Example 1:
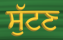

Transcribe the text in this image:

ਸੁੱਟਣ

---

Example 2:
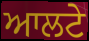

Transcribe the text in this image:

ਆਲਟੇ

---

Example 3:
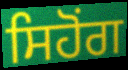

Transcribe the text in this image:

ਸਿਹੋਂਗ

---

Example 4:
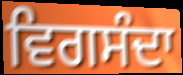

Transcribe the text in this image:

ਵਿਗਸੰਦਾ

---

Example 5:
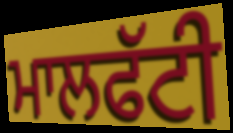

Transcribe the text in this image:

ਮਾਲਫੱਟੀ